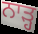
ਨਾੜ੍ਹ